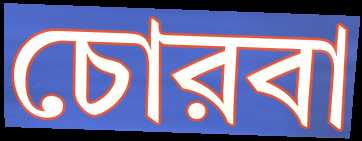
চোরবা